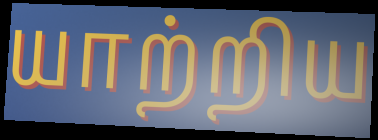
யாற்றிய